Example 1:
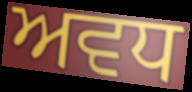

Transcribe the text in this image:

ਅਵਧ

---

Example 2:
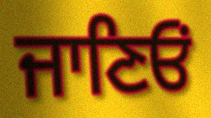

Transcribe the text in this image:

ਜਾਣਿਓਂ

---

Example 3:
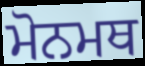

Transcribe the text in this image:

ਮੋਨਮਥ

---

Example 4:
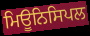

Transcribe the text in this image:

ਮਿਊਨਿਸਿਪਲ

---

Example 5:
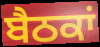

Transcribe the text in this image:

ਬੈਠਕਾਂ